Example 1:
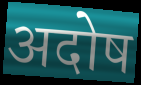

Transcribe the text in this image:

अदोष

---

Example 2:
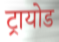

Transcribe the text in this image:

ट्रायोड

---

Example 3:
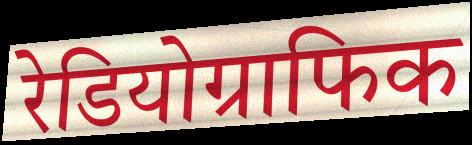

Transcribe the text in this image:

रेडियोग्राफिक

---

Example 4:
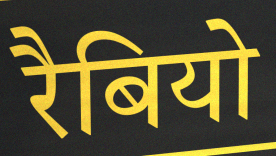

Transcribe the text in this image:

रैबियो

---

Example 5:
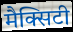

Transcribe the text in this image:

मैक्सिटी